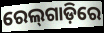
ରେଲ୍‌ଗାଡ଼ିରେ